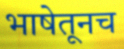
भाषेतूनच